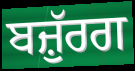
ਬਜ਼ੁੱਰਗ